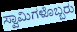
ಸ್ವಾಮಿಗಳೊಬ್ಬರು